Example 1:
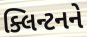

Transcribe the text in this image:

ક્લિન્ટનને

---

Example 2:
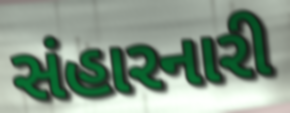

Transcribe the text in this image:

સંહારનારી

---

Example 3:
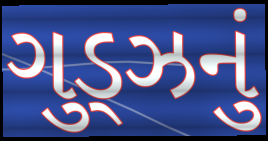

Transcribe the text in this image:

ગુડ્ઝનું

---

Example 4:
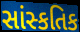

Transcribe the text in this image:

સાંસ્કતિક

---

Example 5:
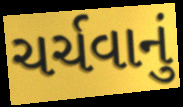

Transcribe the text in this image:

ચર્ચવાનું